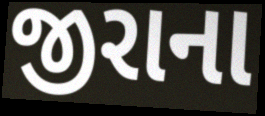
જીરાના